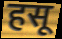
हसू